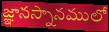
జ్ఞానస్నానములో